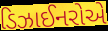
ડિઝાઈનરોએ